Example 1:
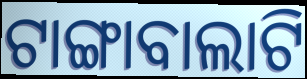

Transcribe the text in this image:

ଟାଙ୍ଗାବାଲାଟି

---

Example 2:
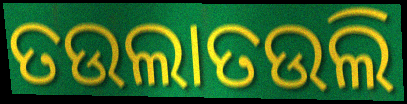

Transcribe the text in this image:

ତଉଲାତଉଲି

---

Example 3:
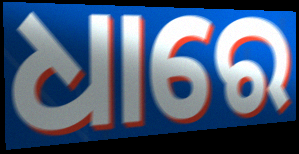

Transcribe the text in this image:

ଧାରେ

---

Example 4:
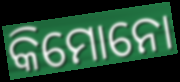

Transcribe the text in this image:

କିମୋନୋ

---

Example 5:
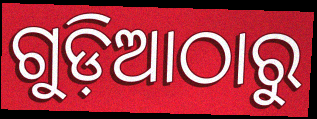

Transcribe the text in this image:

ଗୁଡ଼ିଆଠାରୁ